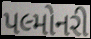
પલ્મોનરી